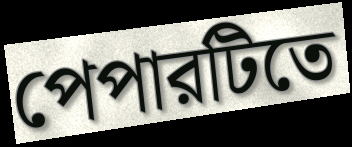
পেপারটিতে